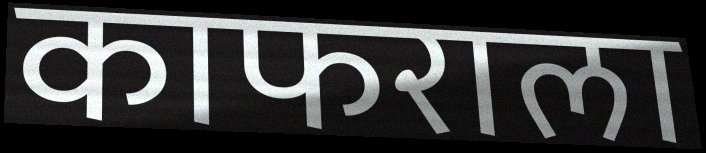
काफराला